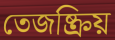
তেজষ্ক্রিয়